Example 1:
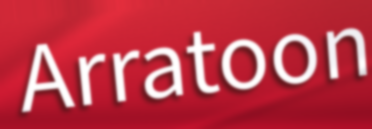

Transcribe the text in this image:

Arratoon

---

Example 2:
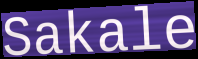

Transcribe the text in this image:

Sakale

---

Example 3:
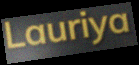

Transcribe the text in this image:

Lauriya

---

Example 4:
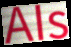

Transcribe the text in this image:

AIs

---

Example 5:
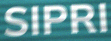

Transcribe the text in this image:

SIPRI